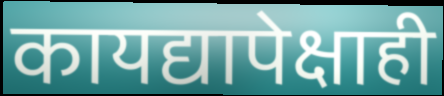
कायद्यापेक्षाही